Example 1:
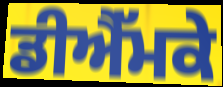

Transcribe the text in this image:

ਡੀਐੱਮਕੇ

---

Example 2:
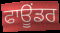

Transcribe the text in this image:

ਫਾਊਂਡਰ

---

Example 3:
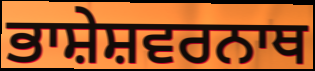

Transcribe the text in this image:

ਭਾਸ਼ੇਸ਼ਵਰਨਾਥ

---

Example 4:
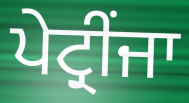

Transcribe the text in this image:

ਪੇਟ੍ਰੀਂਜਾ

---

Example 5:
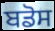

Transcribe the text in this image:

ਬਡੋਸ